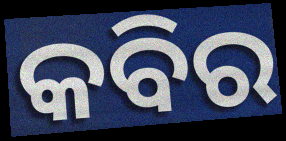
କବିର